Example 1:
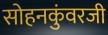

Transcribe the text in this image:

सोहनकुंवरजी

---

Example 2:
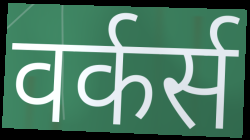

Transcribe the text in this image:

वर्कर्स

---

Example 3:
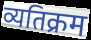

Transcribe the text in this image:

व्यतिक्रम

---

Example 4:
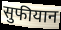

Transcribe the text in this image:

सुफीयान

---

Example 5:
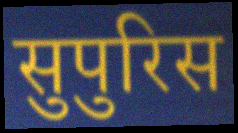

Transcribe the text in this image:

सुपुरिस